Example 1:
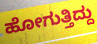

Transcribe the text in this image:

ಹೋಗುತ್ತಿದ್ದು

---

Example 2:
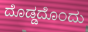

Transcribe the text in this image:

ದೊಡ್ಡದೊಂದು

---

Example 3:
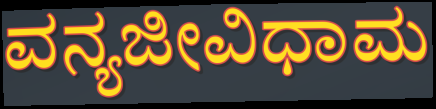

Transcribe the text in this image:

ವನ್ಯಜೀವಿಧಾಮ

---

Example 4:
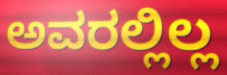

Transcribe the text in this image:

ಅವರಲ್ಲಿಲ್ಲ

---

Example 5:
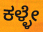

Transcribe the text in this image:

ಕಳ್ಳೇ